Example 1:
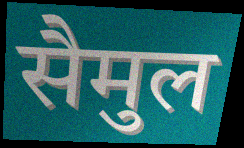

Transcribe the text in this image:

सैमुल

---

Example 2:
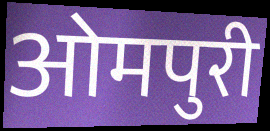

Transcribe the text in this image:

ओमपुरी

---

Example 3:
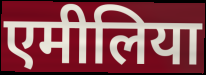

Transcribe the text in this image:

एमीलिया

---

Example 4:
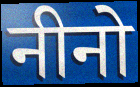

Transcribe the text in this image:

नीनो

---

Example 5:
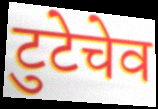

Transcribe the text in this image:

टुटेचेव